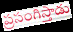
ప్రసంగిస్తాడు